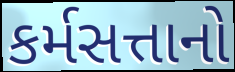
કર્મસત્તાનો